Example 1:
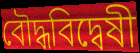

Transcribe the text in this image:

বৌদ্ধবিদ্বেষী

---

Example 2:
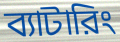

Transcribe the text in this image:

ব্যাটারিং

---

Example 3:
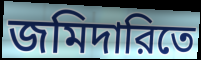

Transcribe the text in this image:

জমিদারিতে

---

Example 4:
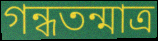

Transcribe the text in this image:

গন্ধতন্মাত্র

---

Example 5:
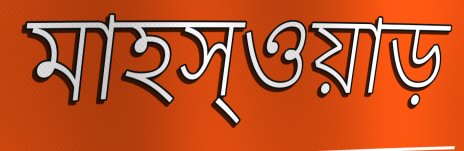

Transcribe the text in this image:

মাহস্ওয়াড়